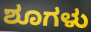
ಶೂಗಳು